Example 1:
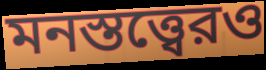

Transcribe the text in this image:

মনস্তত্ত্বেরও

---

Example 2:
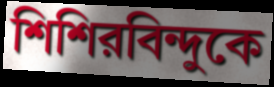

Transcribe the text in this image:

শিশিরবিন্দুকে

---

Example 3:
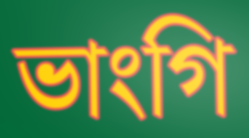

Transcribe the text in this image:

ভাংগি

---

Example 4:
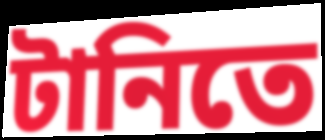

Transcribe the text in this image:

টানিতে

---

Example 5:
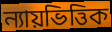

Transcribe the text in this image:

ন্যায়ভিত্তিক